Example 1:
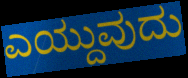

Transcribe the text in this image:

ಎಯ್ದುವುದು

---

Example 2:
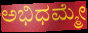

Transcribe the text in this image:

ಅಭಿಧಮ್ಮೇ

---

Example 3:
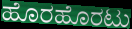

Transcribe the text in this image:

ಹೊರಹೊರಟು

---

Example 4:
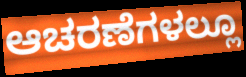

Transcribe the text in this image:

ಆಚರಣೆಗಳಲ್ಲೂ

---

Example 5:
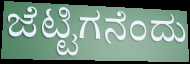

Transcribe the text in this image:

ಜೆಟ್ಟಿಗನೆಂದು